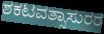
ಶಕಟವತ್ಸಾಸುರರ